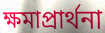
ক্ষমাপ্রার্থনা